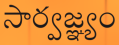
సార్వజ్ఞ్యం